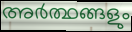
അർത്ഥങ്ങളും